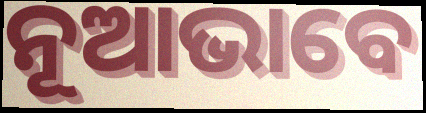
ନୂଆଭାବେ